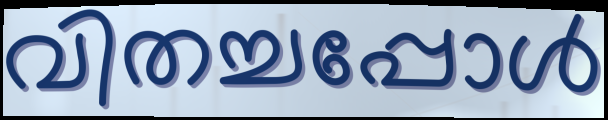
വിതച്ചപ്പോൾ